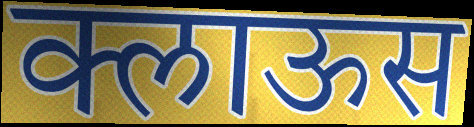
क्लाऊस